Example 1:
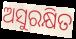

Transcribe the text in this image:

ଅସୁରକ୍ଷିତ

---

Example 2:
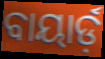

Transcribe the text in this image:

ବାୟାର୍ଡ଼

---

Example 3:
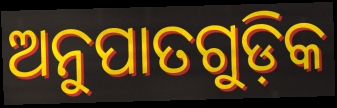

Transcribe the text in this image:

ଅନୁପାତଗୁଡ଼ିକ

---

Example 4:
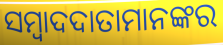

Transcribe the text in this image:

ସମ୍ବାଦଦାତାମାନଙ୍କର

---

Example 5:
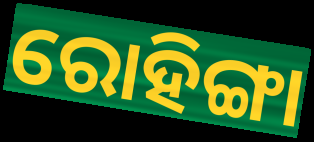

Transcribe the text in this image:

ରୋହିଙ୍ଗା